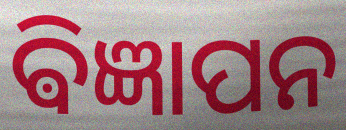
ଵିଜ୍ଞାପନ